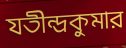
যতীন্দ্রকুমার